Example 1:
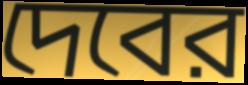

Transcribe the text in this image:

দেবের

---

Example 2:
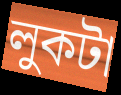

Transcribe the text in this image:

লুকটা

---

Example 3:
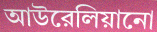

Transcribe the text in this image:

আউরেলিয়ানো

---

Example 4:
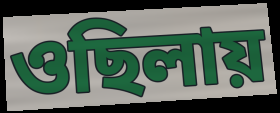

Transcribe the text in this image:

ওছিলায়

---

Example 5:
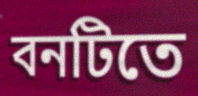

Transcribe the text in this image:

বনটিতে